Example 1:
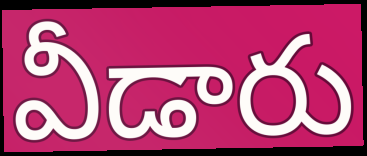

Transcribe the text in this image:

వీడారు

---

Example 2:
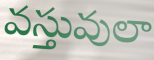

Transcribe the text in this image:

వస్తువులా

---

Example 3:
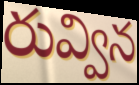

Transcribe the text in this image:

రువ్విన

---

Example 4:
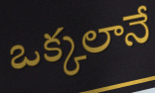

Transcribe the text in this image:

ఒక్కలానే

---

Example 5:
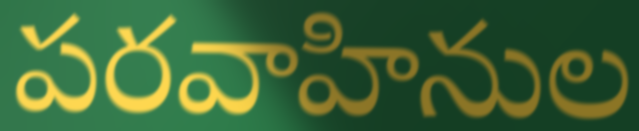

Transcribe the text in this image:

పరవాహినుల